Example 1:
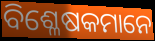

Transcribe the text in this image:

ବିଶ୍ଳେଷକମାନେ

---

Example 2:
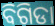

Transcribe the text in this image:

ବିଗିଡା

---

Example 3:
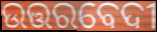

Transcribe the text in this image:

ଉତ୍ତରବେଦୀ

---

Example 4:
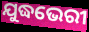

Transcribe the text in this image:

ଯୁଦ୍ଧଭେରୀ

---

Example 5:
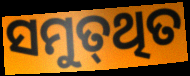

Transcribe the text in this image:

ସମୁତ୍‌ଥିତ